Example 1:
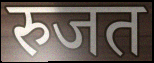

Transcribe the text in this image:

रुजत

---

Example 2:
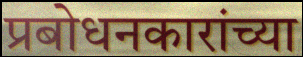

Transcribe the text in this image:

प्रबोधनकारांच्या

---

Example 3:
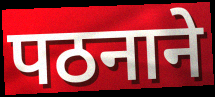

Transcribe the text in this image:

पठनाने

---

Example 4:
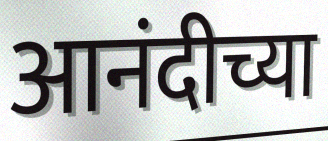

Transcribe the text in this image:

आनंदीच्या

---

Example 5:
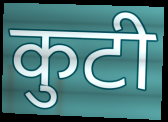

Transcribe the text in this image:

कुटी